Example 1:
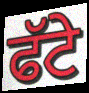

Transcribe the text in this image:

ਫੱਟੇ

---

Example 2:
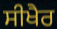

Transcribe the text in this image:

ਸੀਖੈਰ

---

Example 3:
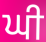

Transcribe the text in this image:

ਘੀ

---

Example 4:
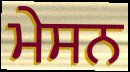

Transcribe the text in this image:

ਮੇਸਨ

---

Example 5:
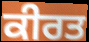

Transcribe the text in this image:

ਕੀਰਤ